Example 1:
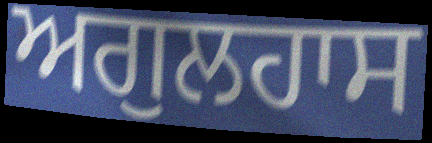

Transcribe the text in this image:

ਅਗੁਲਹਾਸ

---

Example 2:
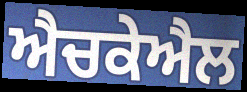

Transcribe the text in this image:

ਐਚਕੇਐਲ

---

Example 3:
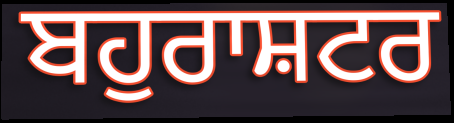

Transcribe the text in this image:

ਬਹੁਰਾਸ਼ਟਰ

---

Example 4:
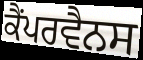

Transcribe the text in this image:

ਕੈਂਪਰਵੈਨਸ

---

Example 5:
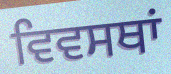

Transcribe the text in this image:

ਵਿਵਸਥਾਂ